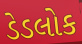
ડેડલોક